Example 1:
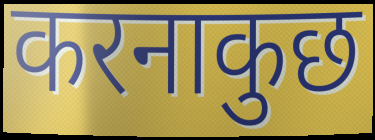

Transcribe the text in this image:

करनाकुछ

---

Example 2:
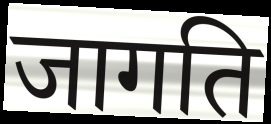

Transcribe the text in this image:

जागति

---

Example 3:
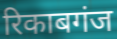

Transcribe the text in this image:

रिकाबगंज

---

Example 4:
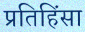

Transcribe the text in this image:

प्रतिहिंसा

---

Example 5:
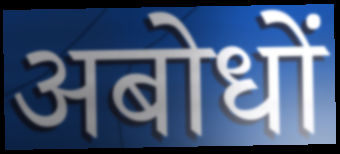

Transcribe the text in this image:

अबोधों